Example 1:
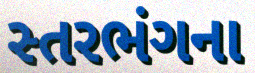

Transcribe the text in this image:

સ્તરભંગના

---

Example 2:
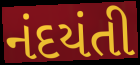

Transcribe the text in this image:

નંદયંતી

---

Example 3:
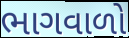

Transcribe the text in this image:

ભાગવાળો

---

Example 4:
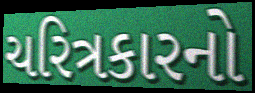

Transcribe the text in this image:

ચરિત્રકારનો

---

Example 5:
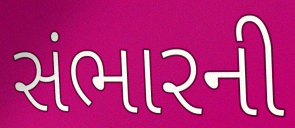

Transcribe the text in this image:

સંભારની